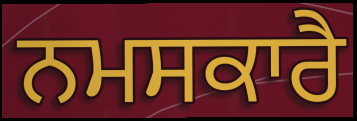
ਨਮਸਕਾਰੈ